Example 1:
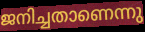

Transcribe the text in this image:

ജനിച്ചതാണെന്നു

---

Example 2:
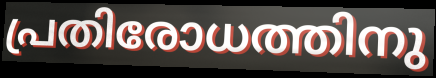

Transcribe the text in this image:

പ്രതിരോധത്തിനു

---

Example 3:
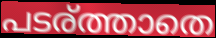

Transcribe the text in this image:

പടര്ത്താതെ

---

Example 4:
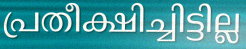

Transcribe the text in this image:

പ്രതീക്ഷിച്ചിട്ടില്ല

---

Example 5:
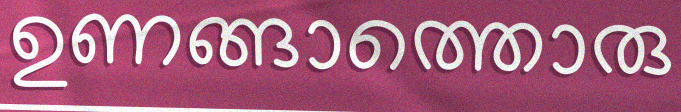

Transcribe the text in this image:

ഉണങ്ങാത്തൊരു